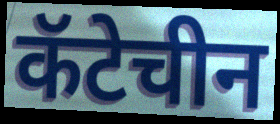
कॅटेचीन